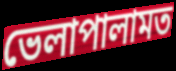
ভেলাপালামত